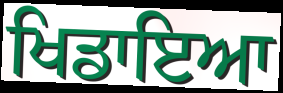
ਖਿਡਾਇਆ